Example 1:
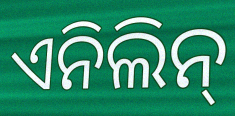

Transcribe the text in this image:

ଏନିଲିନ୍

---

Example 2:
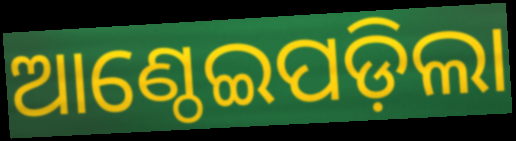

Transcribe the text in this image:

ଆଣ୍ଠେଇପଡ଼ିଲା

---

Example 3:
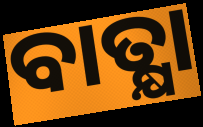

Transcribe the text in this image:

ବାତ୍କ୍ଷା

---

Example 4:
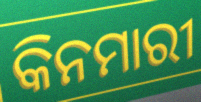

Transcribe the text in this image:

କିନମାରୀ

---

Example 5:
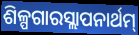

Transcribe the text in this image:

ଶିଳ୍ପଗାରସ୍ଲାପନାର୍ଥମ୍